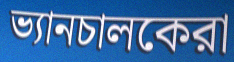
ভ্যানচালকেরা